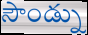
సౌండ్ను